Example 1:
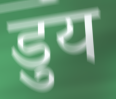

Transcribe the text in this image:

डुय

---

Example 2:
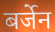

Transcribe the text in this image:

बर्जेन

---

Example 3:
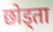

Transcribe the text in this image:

छोड्ता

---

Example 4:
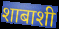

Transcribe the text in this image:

शाबाशी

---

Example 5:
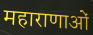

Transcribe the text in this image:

महाराणाओं